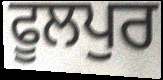
ਫੂਲਪੁਰ